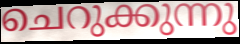
ചെറുക്കുന്നു